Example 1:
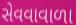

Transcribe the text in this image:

સેવવાવાળા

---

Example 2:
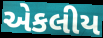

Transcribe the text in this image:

એકલીય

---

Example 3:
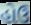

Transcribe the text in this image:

હોઉ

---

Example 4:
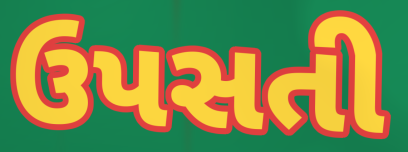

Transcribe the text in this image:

ઉપસતી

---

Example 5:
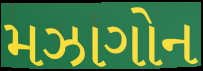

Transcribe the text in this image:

મઝાગોન